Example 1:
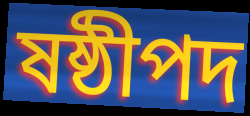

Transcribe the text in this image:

ষষ্ঠীপদ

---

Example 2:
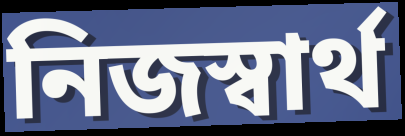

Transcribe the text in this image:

নিজস্বার্থ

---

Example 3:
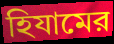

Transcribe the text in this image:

হিযামের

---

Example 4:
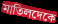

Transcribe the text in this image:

মাতিলদেকে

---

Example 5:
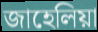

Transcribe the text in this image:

জাহেলিয়া